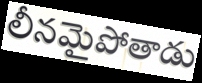
లీనమైపోతాడు